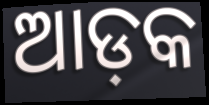
ଆଡ଼କ